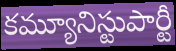
కమ్యూనిస్టుపార్టీ